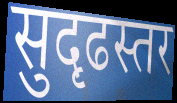
सुदृढस्तर